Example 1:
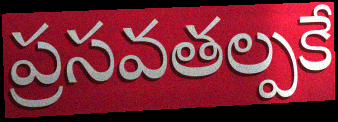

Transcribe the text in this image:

ప్రసవతల్పకే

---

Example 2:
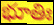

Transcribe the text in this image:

భూతిః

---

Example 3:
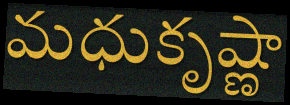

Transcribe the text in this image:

మధుకృష్ణా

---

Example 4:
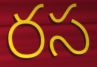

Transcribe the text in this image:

రస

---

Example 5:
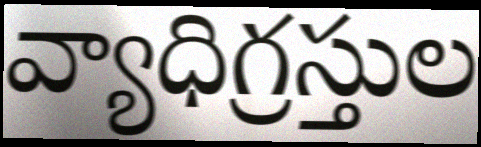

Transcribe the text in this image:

వ్యాధిగ్రస్తుల